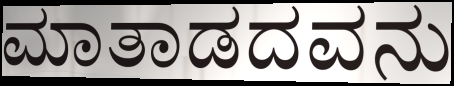
ಮಾತಾಡದವನು